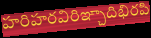
హరిహరవిరిఞ్చాదిభిరపి